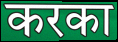
करका